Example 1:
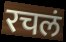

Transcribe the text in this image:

रचलं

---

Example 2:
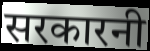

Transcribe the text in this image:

सरकारनी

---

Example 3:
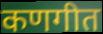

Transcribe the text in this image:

कणगीत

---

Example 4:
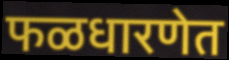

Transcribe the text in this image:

फळधारणेत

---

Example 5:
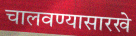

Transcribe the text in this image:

चालवण्यासारखे